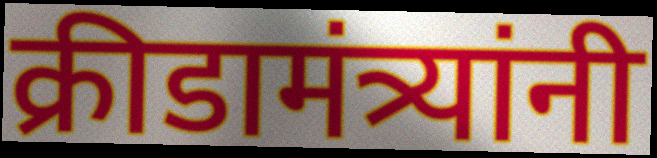
क्रीडामंत्र्यांनी